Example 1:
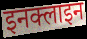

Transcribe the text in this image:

इनक्लाइन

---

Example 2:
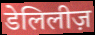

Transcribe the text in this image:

डेलिलीज़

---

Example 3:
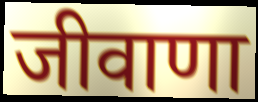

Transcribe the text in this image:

जीवाणा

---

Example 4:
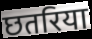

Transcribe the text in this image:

छतरिया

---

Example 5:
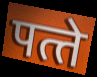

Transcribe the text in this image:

पत्‍ते